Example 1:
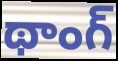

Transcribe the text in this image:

థాంగ్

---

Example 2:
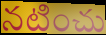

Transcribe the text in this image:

నటించు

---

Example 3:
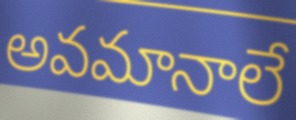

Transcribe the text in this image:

అవమానాలే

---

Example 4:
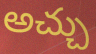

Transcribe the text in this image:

అచ్చు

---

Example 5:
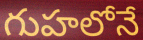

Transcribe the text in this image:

గుహలోనే